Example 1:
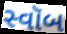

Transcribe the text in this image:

સ્વૉબ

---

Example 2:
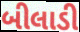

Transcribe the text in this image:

બીલાડી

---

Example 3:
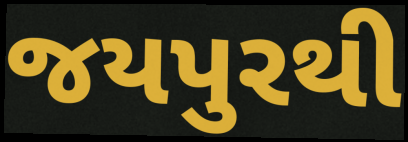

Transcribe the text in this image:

જયપુરથી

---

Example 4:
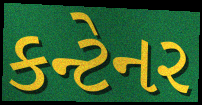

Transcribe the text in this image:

કન્ટેનર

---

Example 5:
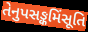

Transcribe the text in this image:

તેનુપસઙ્કમિંસૂતિ